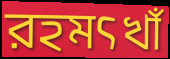
রহমৎখাঁ